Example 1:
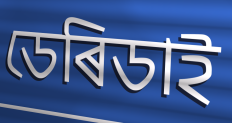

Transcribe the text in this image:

ডেৰিডাই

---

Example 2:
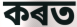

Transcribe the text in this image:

কৰত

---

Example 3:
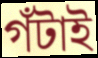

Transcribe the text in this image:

গঁটাই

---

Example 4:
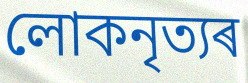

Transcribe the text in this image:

লোকনৃত্যৰ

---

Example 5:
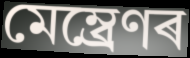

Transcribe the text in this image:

মেম্ব্ৰেণৰ